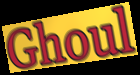
Ghoul